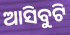
ଆସିବୁଟି